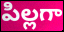
పిల్లగా